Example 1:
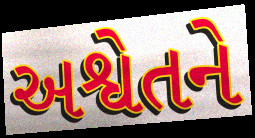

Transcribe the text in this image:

અશ્વેતને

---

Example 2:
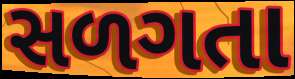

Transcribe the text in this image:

સળગતા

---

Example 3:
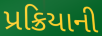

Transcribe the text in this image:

પ્રક્રિયાની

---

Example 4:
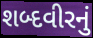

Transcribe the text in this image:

શબ્દવીરનું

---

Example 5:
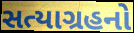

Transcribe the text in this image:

સત્યાગ્રહનો